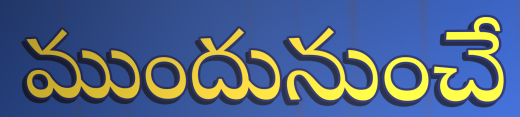
ముందునుంచే